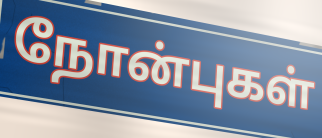
நோன்புகள்